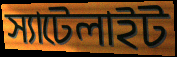
স্যাটেলাইট